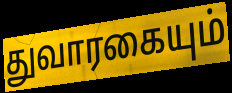
துவாரகையும்